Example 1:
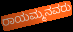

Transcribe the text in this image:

ರಾಯಮ್ಮನವರು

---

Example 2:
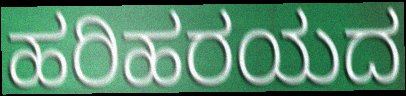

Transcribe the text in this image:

ಹರಿಹರಯದ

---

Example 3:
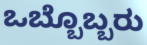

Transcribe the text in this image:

ಒಬ್ಬೊಬ್ಬರು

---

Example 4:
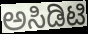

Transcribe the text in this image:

ಅಸಿಡಿಟಿ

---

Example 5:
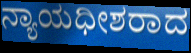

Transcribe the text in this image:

ನ್ಯಾಯಧೀಶರಾದ